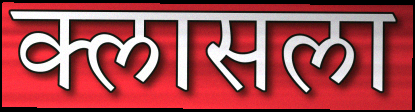
क्लासला